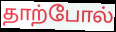
தாற்போல்